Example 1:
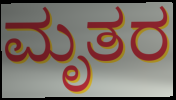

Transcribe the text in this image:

ಮೃತರ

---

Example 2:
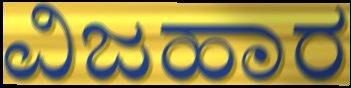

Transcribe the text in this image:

ವಿಜಹಾರ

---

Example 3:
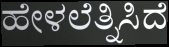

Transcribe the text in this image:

ಹೇಳಲೆತ್ನಿಸಿದೆ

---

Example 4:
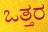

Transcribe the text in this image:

ಒತ್ತರ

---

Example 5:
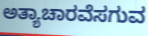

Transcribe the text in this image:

ಅತ್ಯಾಚಾರವೆಸಗುವ